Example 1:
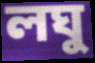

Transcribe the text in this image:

লঘু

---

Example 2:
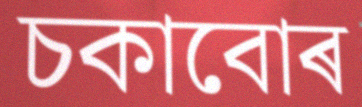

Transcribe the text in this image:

চকাবোৰ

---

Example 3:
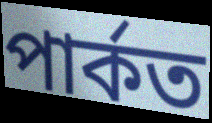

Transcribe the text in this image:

পাৰ্কত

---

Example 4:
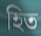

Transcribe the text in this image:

হিত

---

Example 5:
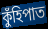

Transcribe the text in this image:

কুঁহিপাত